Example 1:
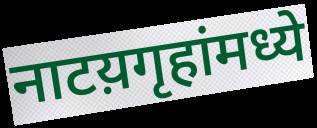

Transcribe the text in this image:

नाटय़गृहांमध्ये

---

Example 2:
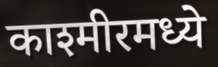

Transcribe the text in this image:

काश्मीरमध्ये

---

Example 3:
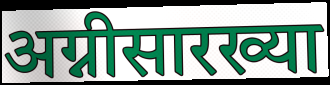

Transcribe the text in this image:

अग्नीसारख्या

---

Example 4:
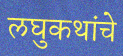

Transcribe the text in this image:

लघुकथांचे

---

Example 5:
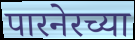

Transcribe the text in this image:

पारनेरच्या